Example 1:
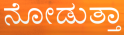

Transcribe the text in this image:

ನೋಡುತ್ತಾ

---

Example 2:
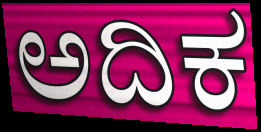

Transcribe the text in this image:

ಅದಿಕ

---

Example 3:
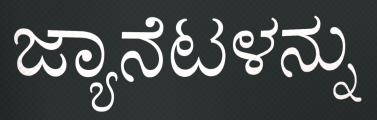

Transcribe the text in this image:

ಜ್ಯಾನೆಟಳನ್ನು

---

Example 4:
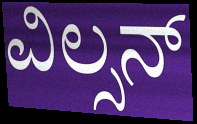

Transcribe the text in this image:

ವಿಲ್ಸನ್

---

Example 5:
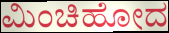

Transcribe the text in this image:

ಮಿಂಚಿಹೋದ